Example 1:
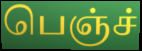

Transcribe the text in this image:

பெஞ்ச்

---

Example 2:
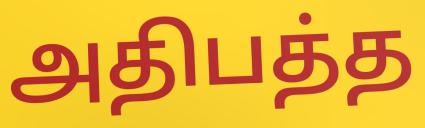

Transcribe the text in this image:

அதிபத்த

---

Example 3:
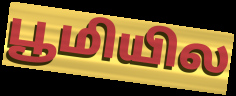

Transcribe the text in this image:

பூமியில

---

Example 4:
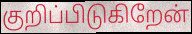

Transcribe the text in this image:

குறிப்பிடுகிறேன்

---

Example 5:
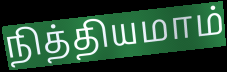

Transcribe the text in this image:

நித்தியமாம்